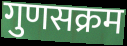
गुणसक्रम